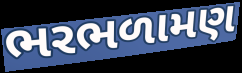
ભરભળામણ